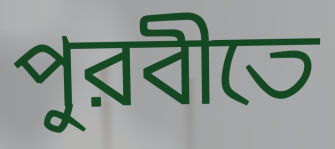
পুরবীতে